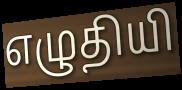
எழுதியி